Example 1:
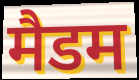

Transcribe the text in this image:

मैडम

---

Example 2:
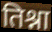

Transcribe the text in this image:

तिश्ना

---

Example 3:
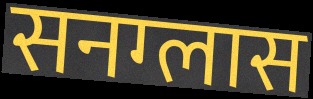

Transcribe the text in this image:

सनग्लास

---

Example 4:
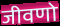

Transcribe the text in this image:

जीवणो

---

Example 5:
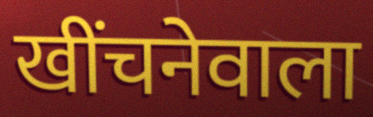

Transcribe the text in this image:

खींचनेवाला